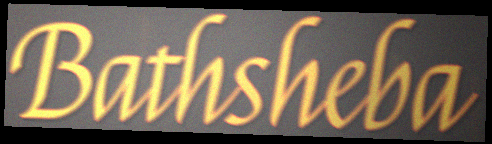
Bathsheba